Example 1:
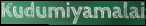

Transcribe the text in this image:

Kudumiyamalai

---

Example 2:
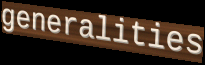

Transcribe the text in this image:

generalities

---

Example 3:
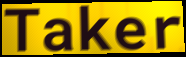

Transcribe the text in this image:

Taker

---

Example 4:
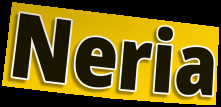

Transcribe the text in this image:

Neria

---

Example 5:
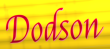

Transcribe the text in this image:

Dodson